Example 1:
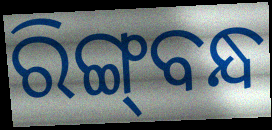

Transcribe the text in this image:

ରିଙ୍ଗ୍‌ବନ୍ଧ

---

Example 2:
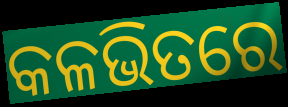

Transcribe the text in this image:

କଳଭିତରେ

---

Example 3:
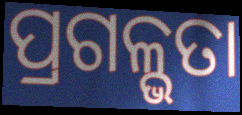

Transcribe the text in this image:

ପ୍ରଗଳ୍ଭତା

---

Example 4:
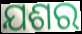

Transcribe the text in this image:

ଯଶର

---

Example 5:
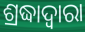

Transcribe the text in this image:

ଶ୍ରଦ୍ଧାଦ୍ୱାରା